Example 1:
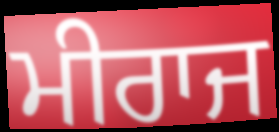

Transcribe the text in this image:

ਮੀਰਾਜ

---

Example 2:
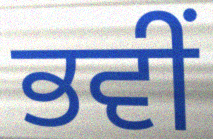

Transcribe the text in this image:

ਭਵੀਂ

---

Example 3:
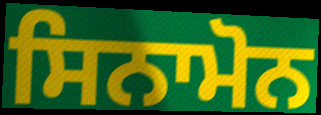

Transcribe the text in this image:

ਸਿਨਾਮੋਨ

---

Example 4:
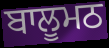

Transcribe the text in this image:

ਬਾਲੂਮਠ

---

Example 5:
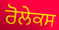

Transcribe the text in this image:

ਰੋਲੇਕਸ